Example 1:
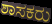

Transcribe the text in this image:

ಶಾಸಕರು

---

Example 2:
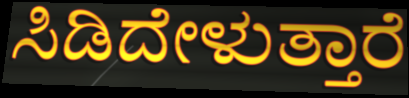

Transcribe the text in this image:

ಸಿಡಿದೇಳುತ್ತಾರೆ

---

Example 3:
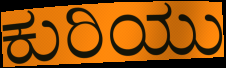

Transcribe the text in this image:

ಕುರಿಯು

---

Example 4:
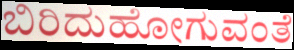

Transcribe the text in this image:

ಬಿರಿದುಹೋಗುವಂತೆ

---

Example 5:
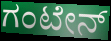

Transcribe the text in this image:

ಗಂಟೇನ್